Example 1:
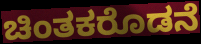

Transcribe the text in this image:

ಚಿಂತಕರೊಡನೆ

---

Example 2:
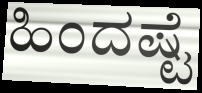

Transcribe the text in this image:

ಹಿಂದಷ್ಟೆ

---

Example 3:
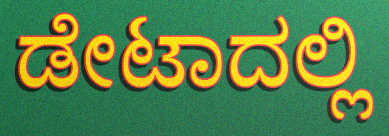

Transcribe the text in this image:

ಡೇಟಾದಲ್ಲಿ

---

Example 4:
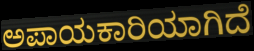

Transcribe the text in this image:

ಅಪಾಯಕಾರಿಯಾಗಿದೆ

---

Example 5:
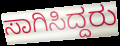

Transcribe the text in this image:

ಸಾಗಿಸಿದ್ದರು